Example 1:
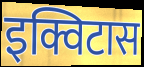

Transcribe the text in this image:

इक्विटास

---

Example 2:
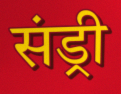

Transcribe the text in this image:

संड्री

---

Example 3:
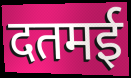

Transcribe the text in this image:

दतमई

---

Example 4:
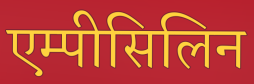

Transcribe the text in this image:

एम्पीसिलिन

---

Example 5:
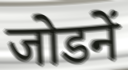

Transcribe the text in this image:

जोडनें